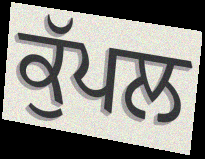
ਕੁੱਪਲ